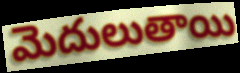
మెదులుతాయి